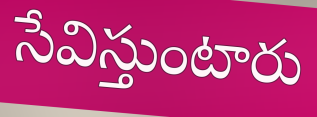
సేవిస్తుంటారు